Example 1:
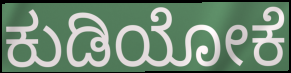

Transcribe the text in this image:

ಕುಡಿಯೋಕೆ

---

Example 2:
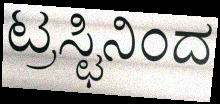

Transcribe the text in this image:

ಟ್ರಸ್ಟಿನಿಂದ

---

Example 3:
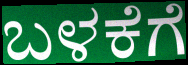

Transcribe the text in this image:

ಬಳಕೆಗೆ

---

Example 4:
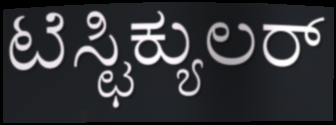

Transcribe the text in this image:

ಟೆಸ್ಟಿಕ್ಯುಲರ್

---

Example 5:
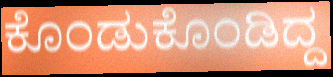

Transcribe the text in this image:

ಕೊಂಡುಕೊಂಡಿದ್ದ